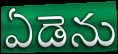
ఏడెను